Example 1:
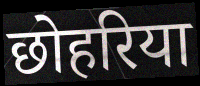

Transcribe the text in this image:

छोहरिया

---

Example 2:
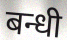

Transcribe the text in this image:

बन्धी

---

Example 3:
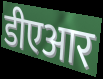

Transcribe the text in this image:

डीएआर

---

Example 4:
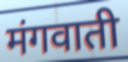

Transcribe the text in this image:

मंगवाती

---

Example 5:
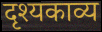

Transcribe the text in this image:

दृश्यकाव्य